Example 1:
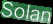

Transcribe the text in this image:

Solan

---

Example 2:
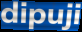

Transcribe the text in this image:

dipuji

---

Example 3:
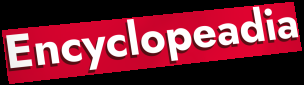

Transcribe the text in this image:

Encyclopeadia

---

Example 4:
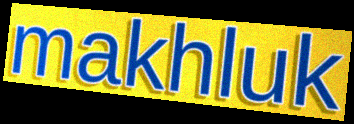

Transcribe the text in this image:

makhluk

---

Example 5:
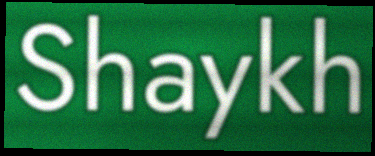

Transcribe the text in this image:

Shaykh